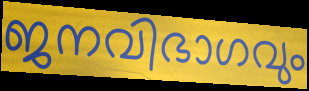
ജനവിഭാഗവും